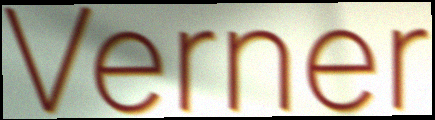
Verner